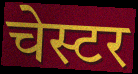
चेस्टर